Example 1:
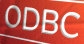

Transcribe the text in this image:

ODBC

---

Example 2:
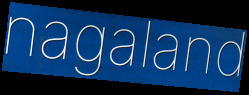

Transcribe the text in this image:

nagaland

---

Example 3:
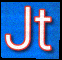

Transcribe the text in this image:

Jt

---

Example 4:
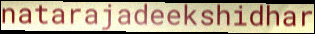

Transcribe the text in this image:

natarajadeekshidhar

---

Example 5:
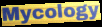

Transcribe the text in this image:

Mycology